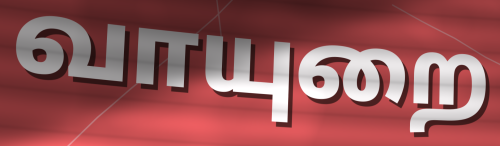
வாயுறை